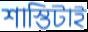
শাস্তিটাই